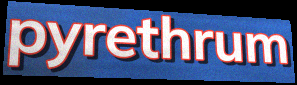
pyrethrum